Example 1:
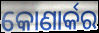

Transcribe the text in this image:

କୋଣାର୍କର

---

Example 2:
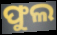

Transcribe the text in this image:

ଫୁଲ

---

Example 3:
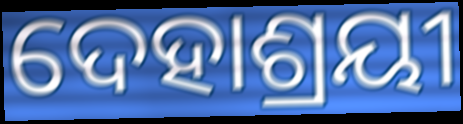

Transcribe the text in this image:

ଦେହାଶ୍ରୟୀ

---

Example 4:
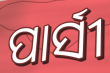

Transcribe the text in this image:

ପାର୍ସୀ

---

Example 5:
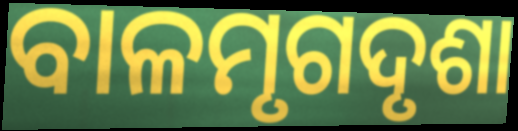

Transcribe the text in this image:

ବାଳମୃଗଦୃଶା